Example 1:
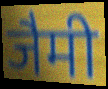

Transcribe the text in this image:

जैमी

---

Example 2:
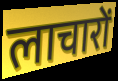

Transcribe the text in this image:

लाचारों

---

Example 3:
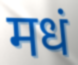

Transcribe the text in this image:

मधं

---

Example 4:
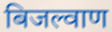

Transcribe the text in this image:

बिजल्वाण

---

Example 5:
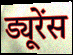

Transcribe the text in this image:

ड्यूरेंस